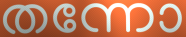
തന്നോ